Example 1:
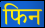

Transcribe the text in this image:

फिन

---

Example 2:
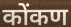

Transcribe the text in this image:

कोंकण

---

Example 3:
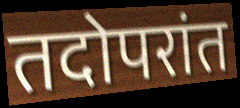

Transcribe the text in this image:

तदोपरांत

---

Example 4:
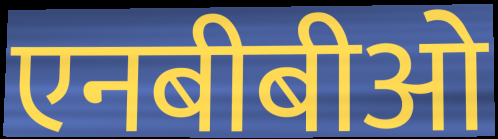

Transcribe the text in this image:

एनबीबीओ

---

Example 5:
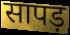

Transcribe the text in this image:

सापड़